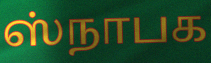
ஸ்நாபக